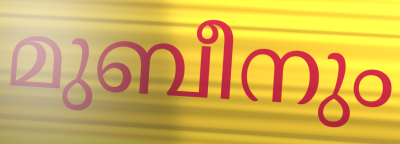
മുബീനും